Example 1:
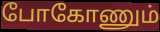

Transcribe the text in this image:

போகோணும்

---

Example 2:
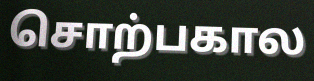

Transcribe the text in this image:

சொற்பகால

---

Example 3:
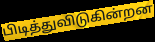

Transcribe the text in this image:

பிடித்துவிடுகின்றன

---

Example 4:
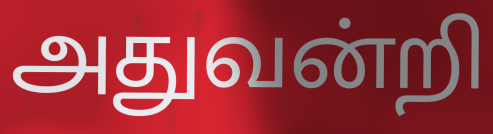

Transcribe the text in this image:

அதுவன்றி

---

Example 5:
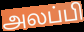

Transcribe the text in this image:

அலப்பி